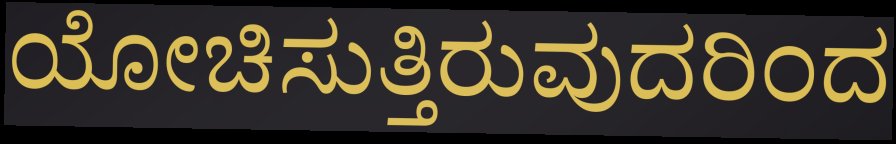
ಯೋಚಿಸುತ್ತಿರುವುದರಿಂದ